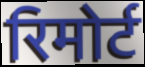
रिमोर्ट